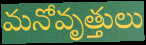
మనోవృత్తులు